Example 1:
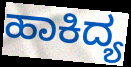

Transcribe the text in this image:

ಹಾಕಿದ್ಯ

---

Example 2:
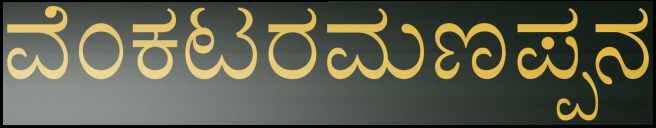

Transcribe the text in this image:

ವೆಂಕಟರಮಣಪ್ಪನ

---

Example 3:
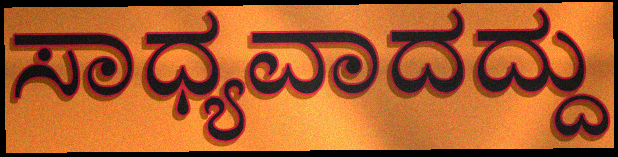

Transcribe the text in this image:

ಸಾಧ್ಯವಾದದ್ದು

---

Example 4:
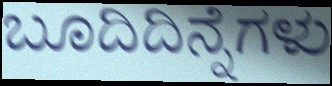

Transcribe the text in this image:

ಬೂದಿದಿನ್ನೆಗಳು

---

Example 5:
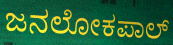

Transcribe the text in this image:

ಜನಲೋಕಪಾಲ್